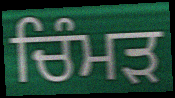
ਚਿੰਮੜ